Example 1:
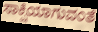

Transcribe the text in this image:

ಸಾಕ್ಷಿಯಾಗುವಂತೆ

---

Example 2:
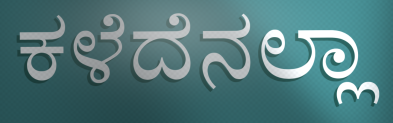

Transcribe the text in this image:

ಕಳೆದೆನಲ್ಲಾ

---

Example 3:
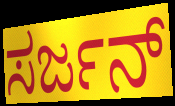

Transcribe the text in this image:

ಸರ್ಜನ್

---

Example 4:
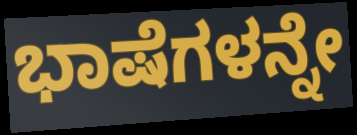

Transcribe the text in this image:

ಭಾಷೆಗಳನ್ನೇ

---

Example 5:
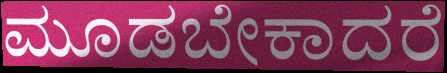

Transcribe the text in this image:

ಮೂಡಬೇಕಾದರೆ